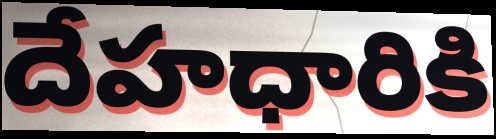
దేహధారికి